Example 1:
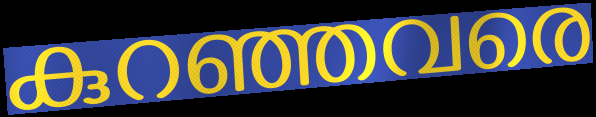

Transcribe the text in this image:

കുറഞ്ഞവരെ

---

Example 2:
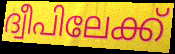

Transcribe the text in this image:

ദ്വീപിലേക്ക്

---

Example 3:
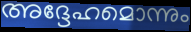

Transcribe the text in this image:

അദ്ദേഹമൊന്നും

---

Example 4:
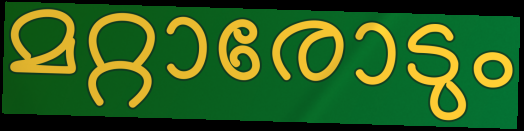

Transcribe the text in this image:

മറ്റാരോടും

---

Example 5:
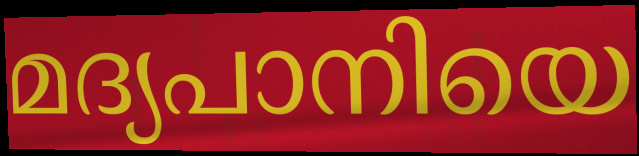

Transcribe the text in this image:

മദ്യപാനിയെ